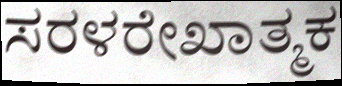
ಸರಳರೇಖಾತ್ಮಕ